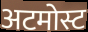
अटमोस्ट